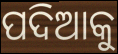
ପଦିଆକୁ